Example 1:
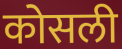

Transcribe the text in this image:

कोसली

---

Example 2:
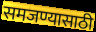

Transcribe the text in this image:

समजण्यासाठी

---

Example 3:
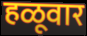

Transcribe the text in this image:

हळूवार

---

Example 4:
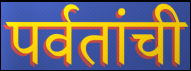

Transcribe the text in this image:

पर्वतांची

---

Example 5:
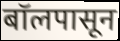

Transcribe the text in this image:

बॉलपासून